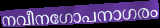
നവീനഗോപനാഗരം